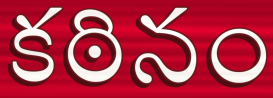
కఠినం